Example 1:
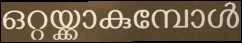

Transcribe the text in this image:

ഒറ്റയ്ക്കാകുമ്പോൾ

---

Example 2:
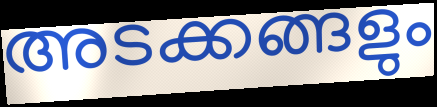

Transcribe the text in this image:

അടക്കങ്ങളും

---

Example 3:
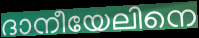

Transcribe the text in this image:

ദാനീയേലിനെ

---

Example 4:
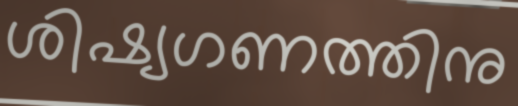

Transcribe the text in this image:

ശിഷ്യഗണത്തിനു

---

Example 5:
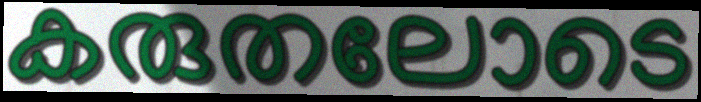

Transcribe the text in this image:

കരുതലോടെ